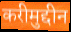
करीमुद्दीन